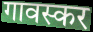
गावस्‍कर